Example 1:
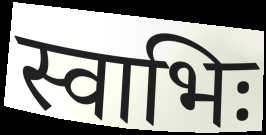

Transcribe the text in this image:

स्वाभिः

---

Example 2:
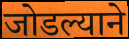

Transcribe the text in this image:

जोडल्याने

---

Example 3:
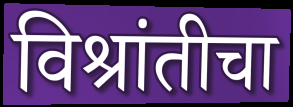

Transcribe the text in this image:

विश्रांतीचा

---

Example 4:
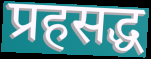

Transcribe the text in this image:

प्रहसद्ध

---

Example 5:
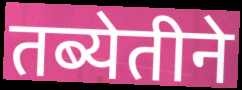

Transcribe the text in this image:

तब्येतीने